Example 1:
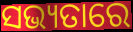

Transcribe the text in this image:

ସଭ୍ୟତାରେ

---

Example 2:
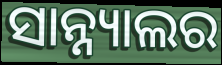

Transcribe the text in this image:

ସାନ୍ନ୍ୟାଲର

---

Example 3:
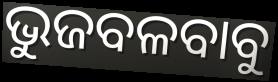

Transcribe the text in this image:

ଭୁଜବଳବାବୁ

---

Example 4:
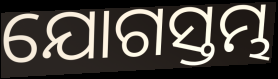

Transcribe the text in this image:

ଯୋଗସ୍ତମ୍ଭ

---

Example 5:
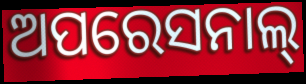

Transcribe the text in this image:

ଅପରେସନାଲ୍